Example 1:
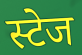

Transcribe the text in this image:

स्टेज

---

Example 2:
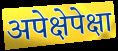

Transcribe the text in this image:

अपेक्षेपेक्षा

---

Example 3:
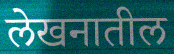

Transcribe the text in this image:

लेखनातील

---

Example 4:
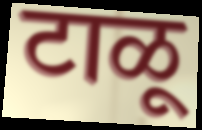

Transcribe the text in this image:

टाळू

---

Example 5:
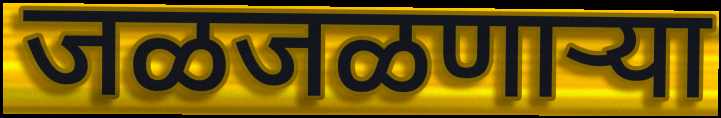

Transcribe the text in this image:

जळजळणाऱ्या